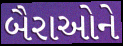
બૈરાઓને